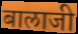
बालाजी